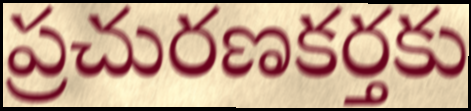
ప్రచురణకర్తకు